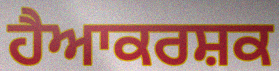
ਹੈਆਕਰਸ਼ਕ